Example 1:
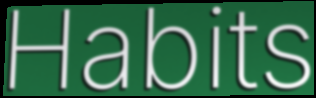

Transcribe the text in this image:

Habits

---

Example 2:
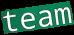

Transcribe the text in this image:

team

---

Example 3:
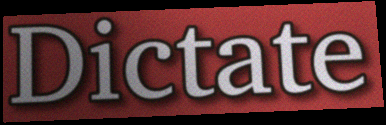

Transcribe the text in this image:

Dictate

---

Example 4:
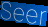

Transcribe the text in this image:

Seer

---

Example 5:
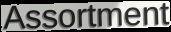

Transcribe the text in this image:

Assortment